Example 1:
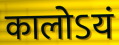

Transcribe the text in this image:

कालोऽयं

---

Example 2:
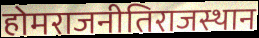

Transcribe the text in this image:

होमराजनीतिराजस्थान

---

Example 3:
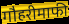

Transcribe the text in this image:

गौहरीमाफी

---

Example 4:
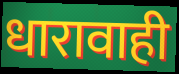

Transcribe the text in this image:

धारावाही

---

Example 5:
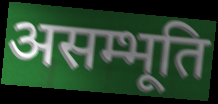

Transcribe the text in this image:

असम्भूति